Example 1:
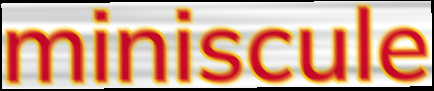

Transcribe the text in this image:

miniscule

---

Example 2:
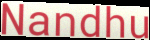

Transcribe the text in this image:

Nandhu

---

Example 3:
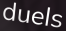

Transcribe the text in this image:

duels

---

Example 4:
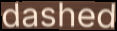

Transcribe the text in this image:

dashed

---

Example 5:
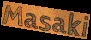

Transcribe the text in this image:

Masaki